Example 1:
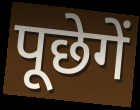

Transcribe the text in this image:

पूछेगें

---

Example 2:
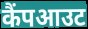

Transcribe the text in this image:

कैंपआउट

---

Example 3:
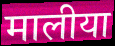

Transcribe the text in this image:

मालीया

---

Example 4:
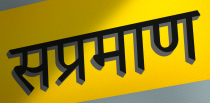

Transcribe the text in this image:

सप्रमाण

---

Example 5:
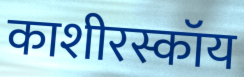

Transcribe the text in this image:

काशीरस्कॉय